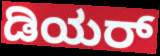
ಡಿಯರ್